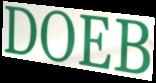
DOEB